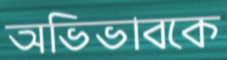
অভিভাবকে